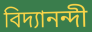
বিদ্যানন্দী